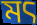
মৎ